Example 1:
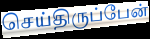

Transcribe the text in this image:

செய்திருப்பேன்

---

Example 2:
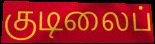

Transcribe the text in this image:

குடிலைப்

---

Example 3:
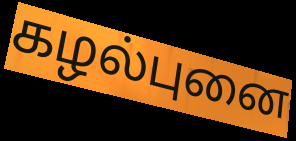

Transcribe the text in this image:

கழல்புனை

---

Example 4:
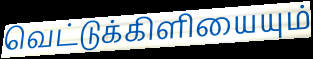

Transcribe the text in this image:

வெட்டுக்கிளியையும்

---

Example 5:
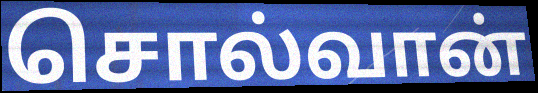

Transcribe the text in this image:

சொல்வான்